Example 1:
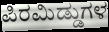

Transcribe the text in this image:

ಪಿರಮಿಡ್ಡುಗಳ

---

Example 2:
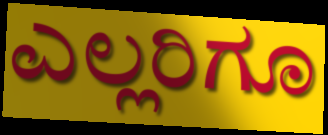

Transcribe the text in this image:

ಎಲ್ಲರಿಗೂ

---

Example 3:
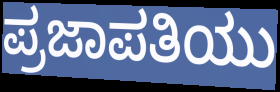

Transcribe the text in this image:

ಪ್ರಜಾಪತಿಯು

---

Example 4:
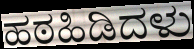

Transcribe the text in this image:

ಹಠಹಿಡಿದಳು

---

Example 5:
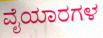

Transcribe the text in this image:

ವೈಯಾರಗಳ